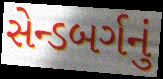
સેન્ડબર્ગનું